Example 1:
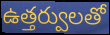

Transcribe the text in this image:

ఉత్తర్వులతో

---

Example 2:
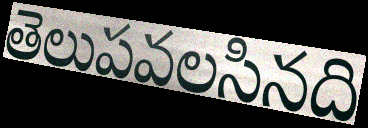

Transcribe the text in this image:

తెలుపవలసినది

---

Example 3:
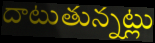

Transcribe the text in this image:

దాటుతున్నట్లు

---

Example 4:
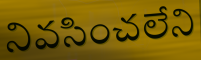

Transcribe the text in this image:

నివసించలేని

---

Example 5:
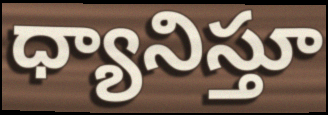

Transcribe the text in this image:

ధ్యానిస్తూ